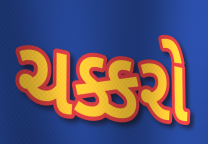
ચક્કરો